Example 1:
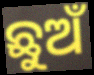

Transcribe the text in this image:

ଛୁଅଁ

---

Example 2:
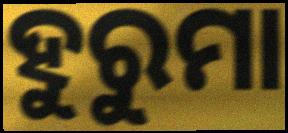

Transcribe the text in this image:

ହୁରୁମା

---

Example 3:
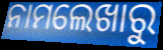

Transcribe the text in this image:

ନାମଲେଖାରୁ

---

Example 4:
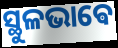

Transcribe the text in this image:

ସ୍ଥୁଳଭାଵେ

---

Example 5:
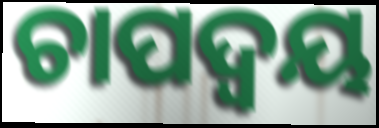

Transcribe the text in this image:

ଚାପଦ୍ଵୟ